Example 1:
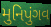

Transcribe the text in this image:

મુનિપુંગવ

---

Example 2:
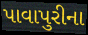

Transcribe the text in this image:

પાવાપુરીના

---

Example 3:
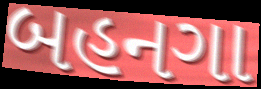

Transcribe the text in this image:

બહનગા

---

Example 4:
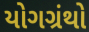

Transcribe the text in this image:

યોગગ્રંથો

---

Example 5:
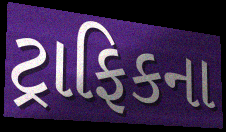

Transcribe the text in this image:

ટ્રાફિકના